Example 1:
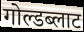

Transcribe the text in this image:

गोल्डब्लाट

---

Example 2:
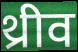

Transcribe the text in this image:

थ्रीव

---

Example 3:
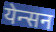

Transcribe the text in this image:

येन्सन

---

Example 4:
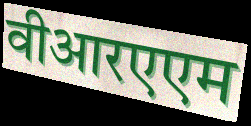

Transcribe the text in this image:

वीआरएएम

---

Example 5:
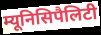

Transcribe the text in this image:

म्यूनिसिपैलिटी